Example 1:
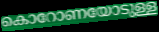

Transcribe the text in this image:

കൊറോണയോടുള്ള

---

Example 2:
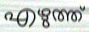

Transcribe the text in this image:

എഴുത്ത്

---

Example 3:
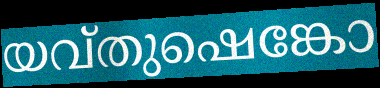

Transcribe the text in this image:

യവ്തുഷെങ്കോ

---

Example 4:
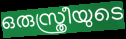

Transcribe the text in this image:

ഒരുസ്ത്രീയുടെ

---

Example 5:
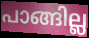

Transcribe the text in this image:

പാങ്ങില്ല